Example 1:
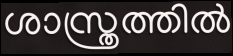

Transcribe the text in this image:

ശാസ്ത്രത്തിൽ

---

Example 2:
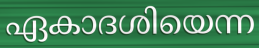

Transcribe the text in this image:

ഏകാദശിയെന്ന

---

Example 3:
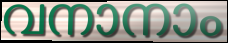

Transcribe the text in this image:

വനാനാം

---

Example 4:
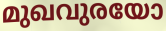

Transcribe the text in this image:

മുഖവുരയോ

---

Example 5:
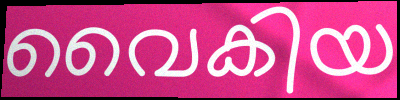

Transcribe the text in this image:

വൈകിയ